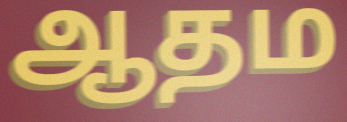
ஆதம